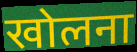
खोलना